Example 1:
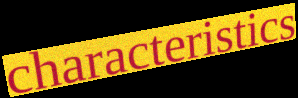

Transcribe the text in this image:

characteristics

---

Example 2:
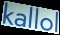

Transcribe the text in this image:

kallol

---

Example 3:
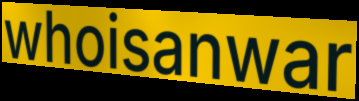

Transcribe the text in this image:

whoisanwar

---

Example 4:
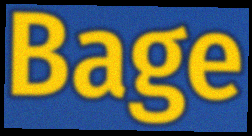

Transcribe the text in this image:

Bage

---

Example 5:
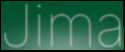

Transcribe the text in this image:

Jima